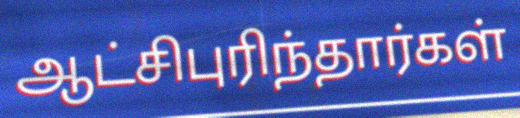
ஆட்சிபுரிந்தார்கள்